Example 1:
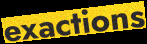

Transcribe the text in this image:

exactions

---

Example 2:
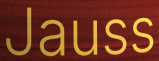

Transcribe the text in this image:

Jauss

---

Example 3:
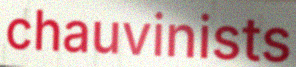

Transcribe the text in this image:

chauvinists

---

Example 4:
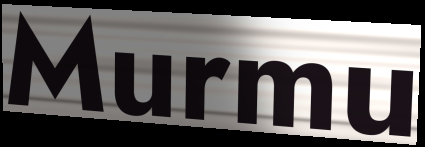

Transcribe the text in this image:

Murmu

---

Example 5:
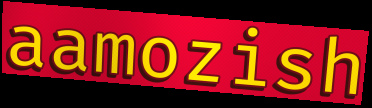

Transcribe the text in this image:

aamozish